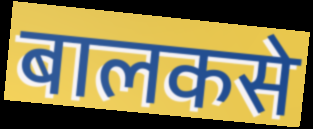
बालकसे